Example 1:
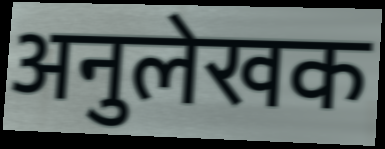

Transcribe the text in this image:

अनुलेखक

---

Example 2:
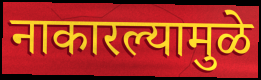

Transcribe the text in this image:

नाकारल्यामुळे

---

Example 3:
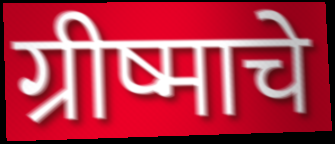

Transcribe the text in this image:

ग्रीष्माचे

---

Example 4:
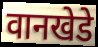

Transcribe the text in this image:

वानखेडे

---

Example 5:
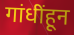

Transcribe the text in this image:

गांधींहून